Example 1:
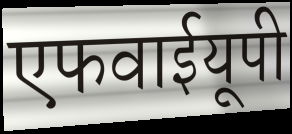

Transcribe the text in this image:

एफवाईयूपी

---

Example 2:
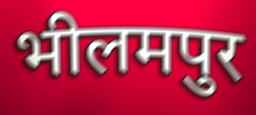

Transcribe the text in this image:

भीलमपुर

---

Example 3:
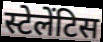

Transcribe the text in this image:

स्टेलेंटिस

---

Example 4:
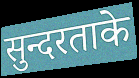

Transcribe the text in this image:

सुन्दरताके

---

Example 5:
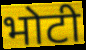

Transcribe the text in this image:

भोटी